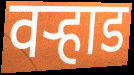
वर्‍हाड